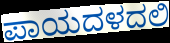
ಪಾಯದಳದಲಿ